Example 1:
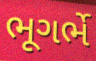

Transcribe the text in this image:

ભૂગર્ભે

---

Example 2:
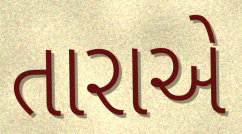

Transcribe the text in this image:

તારાએ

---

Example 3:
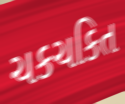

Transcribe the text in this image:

ચકચકિત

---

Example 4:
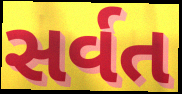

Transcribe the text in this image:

સર્વત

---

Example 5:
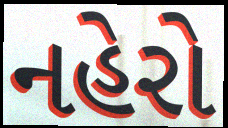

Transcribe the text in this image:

નહેરો